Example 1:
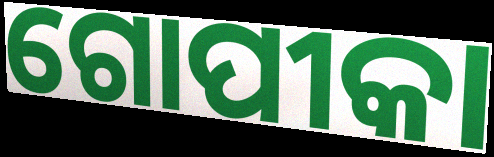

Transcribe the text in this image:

ଗୋପୀକା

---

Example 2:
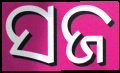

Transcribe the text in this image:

ସଜ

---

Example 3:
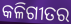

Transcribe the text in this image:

କଳିଗୀତର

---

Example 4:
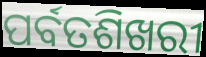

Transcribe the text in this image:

ପର୍ବତଶିଖରୀ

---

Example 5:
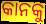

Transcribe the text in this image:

କାନକୁ